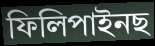
ফিলিপাইনছ